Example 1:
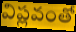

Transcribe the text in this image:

విప్లవంతో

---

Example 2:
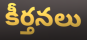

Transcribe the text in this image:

కీర్తనలు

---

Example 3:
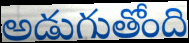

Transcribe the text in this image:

అడుగుతోంది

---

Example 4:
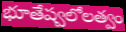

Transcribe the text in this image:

భూతేష్వలోలత్వం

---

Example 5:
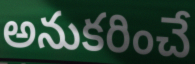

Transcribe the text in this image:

అనుకరించే